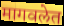
मागवलेत